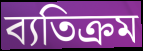
ব্যতিক্ৰম